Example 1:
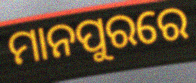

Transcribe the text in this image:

ମାନପୁରରେ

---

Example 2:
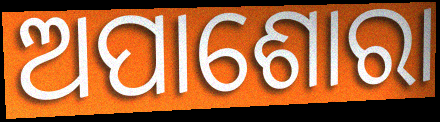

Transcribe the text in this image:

ଅପାଶୋରା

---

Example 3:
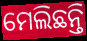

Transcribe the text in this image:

ମେଲିଛନ୍ତି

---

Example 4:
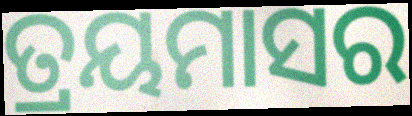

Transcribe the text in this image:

ତ୍ରୟମାସର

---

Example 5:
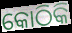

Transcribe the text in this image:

କୋଠିକି